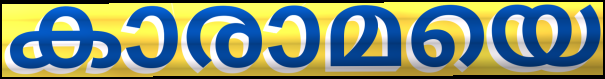
കാരാമയെ